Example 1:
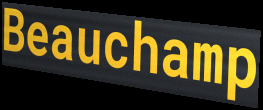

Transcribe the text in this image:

Beauchamp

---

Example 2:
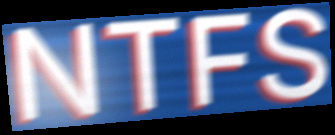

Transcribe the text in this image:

NTFS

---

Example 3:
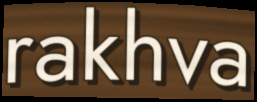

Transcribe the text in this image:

rakhva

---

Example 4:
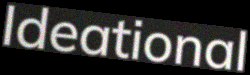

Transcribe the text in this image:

Ideational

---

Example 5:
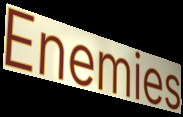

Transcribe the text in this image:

Enemies